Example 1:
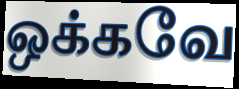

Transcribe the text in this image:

ஒக்கவே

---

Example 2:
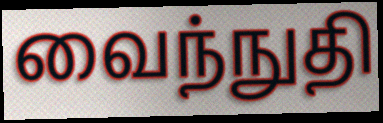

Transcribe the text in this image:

வைந்நுதி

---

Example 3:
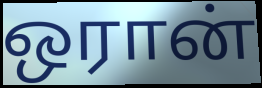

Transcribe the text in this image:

ஒரான்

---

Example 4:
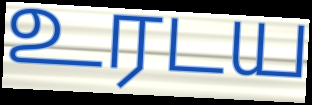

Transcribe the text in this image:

உரடய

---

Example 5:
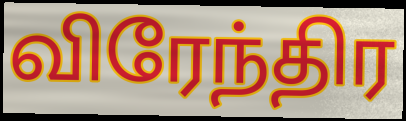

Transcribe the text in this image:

விரேந்திர